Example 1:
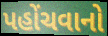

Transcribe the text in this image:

પહોંચવાનો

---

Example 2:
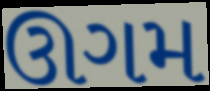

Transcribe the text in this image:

ઊગમ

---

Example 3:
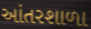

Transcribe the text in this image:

આંતરશાળા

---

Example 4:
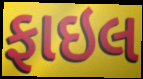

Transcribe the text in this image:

ફાઇલ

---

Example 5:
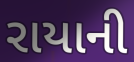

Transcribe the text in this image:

રાયાની